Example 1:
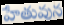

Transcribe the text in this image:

హేతువున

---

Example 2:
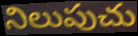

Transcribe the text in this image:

నిలుపుచు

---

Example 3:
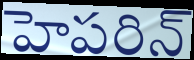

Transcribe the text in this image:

హెపరిన్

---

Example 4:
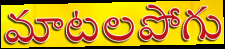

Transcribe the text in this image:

మాటలపోగు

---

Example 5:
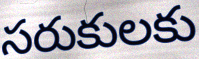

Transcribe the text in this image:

సరుకులకు